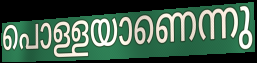
പൊള്ളയാണെന്നു